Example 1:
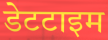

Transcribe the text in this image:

डेटटाइम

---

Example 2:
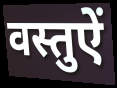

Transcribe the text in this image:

वस्तुऐं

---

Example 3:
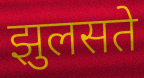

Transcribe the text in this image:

झुलसते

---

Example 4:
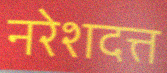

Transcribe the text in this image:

नरेशदत्त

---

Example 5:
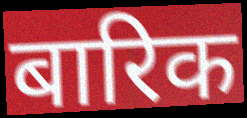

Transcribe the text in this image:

बारिक